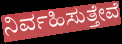
ನಿರ್ವಹಿಸುತ್ತೇವೆ